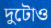
দুটোও